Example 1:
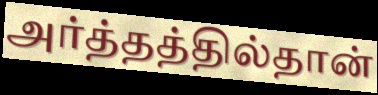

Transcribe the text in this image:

அர்த்தத்தில்தான்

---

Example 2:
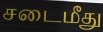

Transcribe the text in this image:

சடைமீது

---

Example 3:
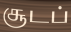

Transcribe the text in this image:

சூடப்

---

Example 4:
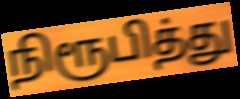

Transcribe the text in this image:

நிரூபித்து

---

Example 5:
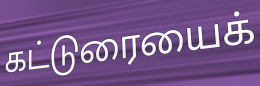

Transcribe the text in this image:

கட்டுரையைக்